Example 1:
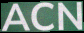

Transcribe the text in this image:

ACN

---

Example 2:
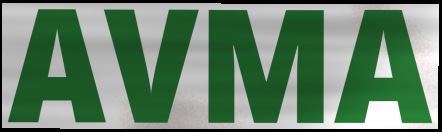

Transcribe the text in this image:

AVMA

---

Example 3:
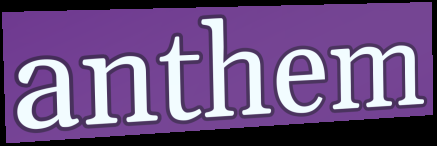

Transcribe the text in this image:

anthem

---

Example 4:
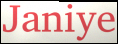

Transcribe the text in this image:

Janiye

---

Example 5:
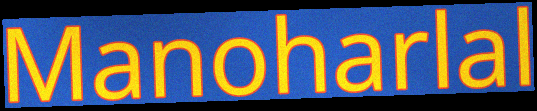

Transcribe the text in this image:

Manoharlal